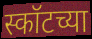
स्कॉटच्या